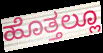
ಹೊತ್ತಲ್ಲೂ